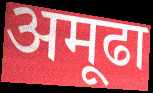
अमूढा